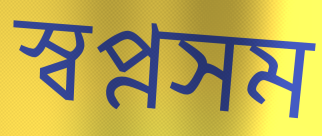
স্বপ্নসম